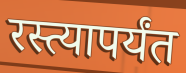
रस्त्यापर्यंत